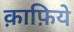
क़ाफ़िये